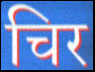
चिर